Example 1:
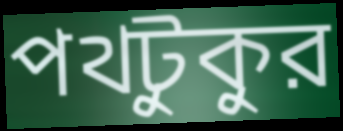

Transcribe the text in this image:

পথটুকুর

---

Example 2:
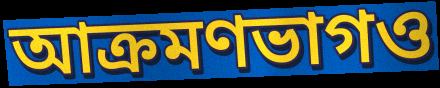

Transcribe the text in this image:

আক্রমণভাগও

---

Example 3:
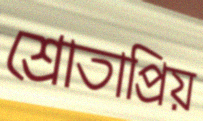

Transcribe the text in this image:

শ্রোতাপ্রিয়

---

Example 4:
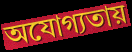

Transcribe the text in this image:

অযোগ্যতায়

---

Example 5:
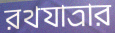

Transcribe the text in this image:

রথযাত্রার